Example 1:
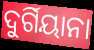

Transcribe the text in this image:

ଦୁର୍ଗିୟାନା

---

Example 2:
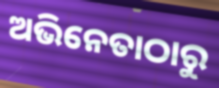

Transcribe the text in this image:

ଅଭିନେତାଠାରୁ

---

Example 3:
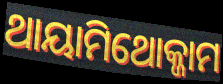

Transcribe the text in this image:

ଥାୟାମିଥୋକ୍ଜାମ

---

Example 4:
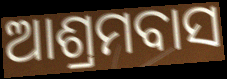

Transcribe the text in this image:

ଆଶ୍ରମବାସ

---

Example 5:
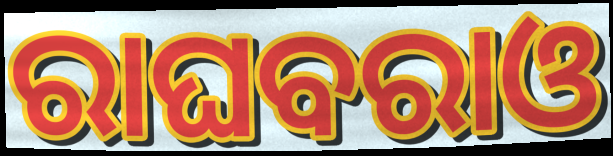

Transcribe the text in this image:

ରାଘବରାଓ